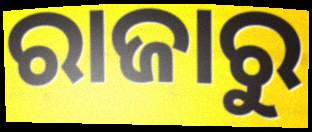
ରାଜାରୁ